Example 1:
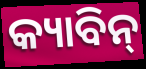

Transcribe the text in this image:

କ୍ୟାବିନ୍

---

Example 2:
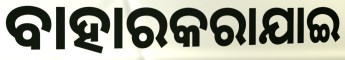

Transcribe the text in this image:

ବାହାରକରାଯାଇ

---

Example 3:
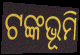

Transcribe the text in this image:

ଟଙ୍କଭୂମି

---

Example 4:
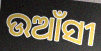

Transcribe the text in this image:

ଉଆଁସୀ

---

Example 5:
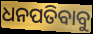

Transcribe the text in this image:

ଧନପତିବାବୁ